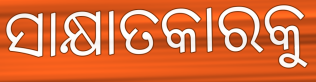
ସାକ୍ଷାତକାରକୁ